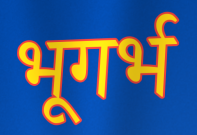
भूगर्भ